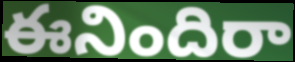
ఈనిందిరా